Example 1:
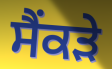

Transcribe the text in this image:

ਸੈਂਕੜੇ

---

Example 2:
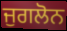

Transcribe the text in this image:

ਜੁਗਲੋਨ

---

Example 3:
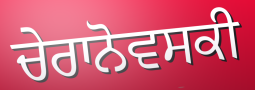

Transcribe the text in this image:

ਚੇਰਾਨੋਵਸਕੀ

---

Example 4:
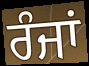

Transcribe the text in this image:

ਰੰਜਾਂ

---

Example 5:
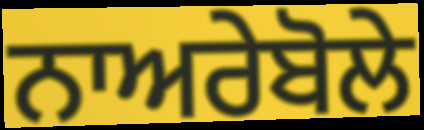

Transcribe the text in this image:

ਨਾਅਰੇਬੋਲੇ